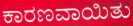
ಕಾರಣವಾಯಿತು